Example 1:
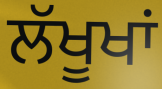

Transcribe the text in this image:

ਲੱਖੂਖਾਂ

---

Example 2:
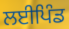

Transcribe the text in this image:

ਲਈਪਿੰਡ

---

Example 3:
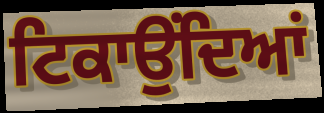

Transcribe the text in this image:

ਟਿਕਾਉਂਦਿਆਂ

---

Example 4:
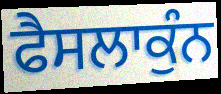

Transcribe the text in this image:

ਫੈਸਲਾਕੁੰਨ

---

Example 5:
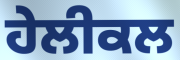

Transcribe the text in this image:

ਹੇਲੀਕਲ